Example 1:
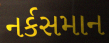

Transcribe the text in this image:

નર્કસમાન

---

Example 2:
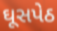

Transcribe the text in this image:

ઘૂસપેઠ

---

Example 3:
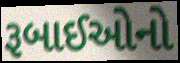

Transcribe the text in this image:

રૂબાઈઓનો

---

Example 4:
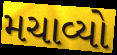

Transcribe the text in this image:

મચાવ્યો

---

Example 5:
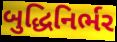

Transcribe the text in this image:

બુદ્ધિનિર્ભર